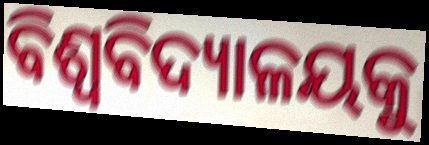
ବିଶ୍ବବିଦ୍ୟାଳୟକୁ